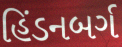
હિંડનબર્ગ